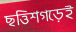
ছত্তিশগড়েই